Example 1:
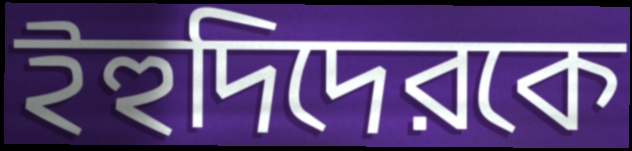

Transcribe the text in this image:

ইহুদিদেরকে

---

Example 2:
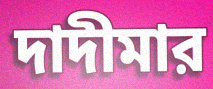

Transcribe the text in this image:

দাদীমার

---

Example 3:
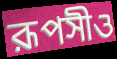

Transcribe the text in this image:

রূপসীও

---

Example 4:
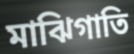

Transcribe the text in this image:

মাঝিগাতি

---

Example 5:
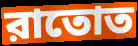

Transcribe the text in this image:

রাতোত